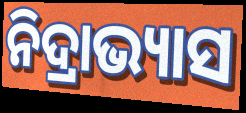
ନିଦ୍ରାଭ୍ୟାସ